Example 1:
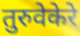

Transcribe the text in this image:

तुरुवेकेरे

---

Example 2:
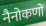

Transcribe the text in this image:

नैनोकणों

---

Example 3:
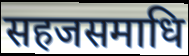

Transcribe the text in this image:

सहजसमाधि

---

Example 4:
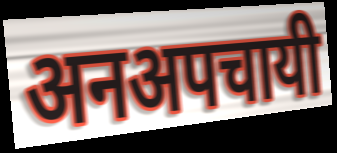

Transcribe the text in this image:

अनअपचायी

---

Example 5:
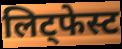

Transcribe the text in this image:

लिट्फेस्ट